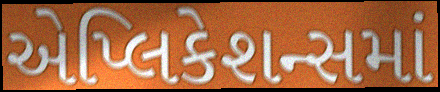
એપ્લિકેશન્સમાં